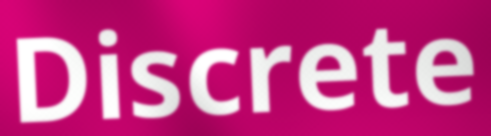
Discrete